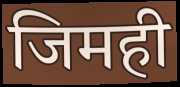
जिमही